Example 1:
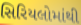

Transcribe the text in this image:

સિરિયલોમાંથી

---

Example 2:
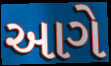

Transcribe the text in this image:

આગે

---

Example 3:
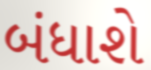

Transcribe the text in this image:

બંધાશે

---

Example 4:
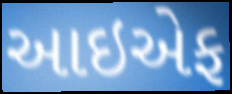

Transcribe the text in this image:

આઇએફ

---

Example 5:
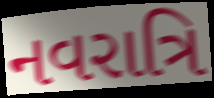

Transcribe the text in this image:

નવરાત્રિ